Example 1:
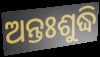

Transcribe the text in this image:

ଅନ୍ତଃଶୁଦ୍ଧି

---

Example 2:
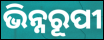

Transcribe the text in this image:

ଭିନ୍ନରୂପୀ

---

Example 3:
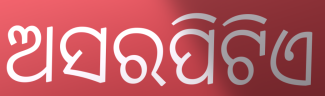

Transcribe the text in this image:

ଅସରପିଟିଏ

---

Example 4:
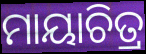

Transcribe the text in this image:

ମାୟାଚିତ୍ର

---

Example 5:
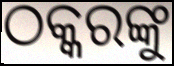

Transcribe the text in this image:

ଠକ୍କରଙ୍କୁ